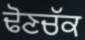
ਢੋਣਚੱਕ